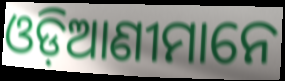
ଓଡ଼ିଆଣୀମାନେ